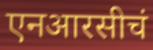
एनआरसीचं